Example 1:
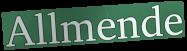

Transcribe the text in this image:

Allmende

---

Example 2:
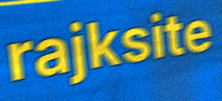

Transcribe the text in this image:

rajksite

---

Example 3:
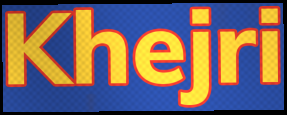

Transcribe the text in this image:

Khejri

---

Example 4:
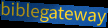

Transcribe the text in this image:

biblegateway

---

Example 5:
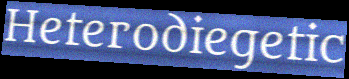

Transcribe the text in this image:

Heterodiegetic